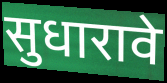
सुधारावे